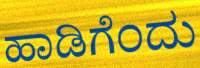
ಹಾಡಿಗೆಂದು